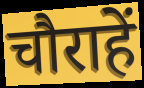
चौराहें